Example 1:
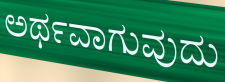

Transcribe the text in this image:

ಅರ್ಥವಾಗುವುದು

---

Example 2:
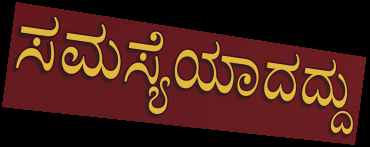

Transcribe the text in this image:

ಸಮಸ್ಯೆಯಾದದ್ದು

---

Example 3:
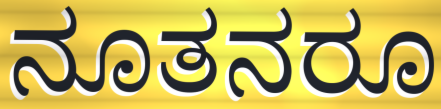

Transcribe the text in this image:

ನೂತನರೂ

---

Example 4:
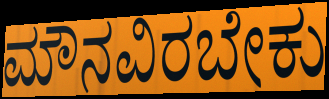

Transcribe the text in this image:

ಮೌನವಿರಬೇಕು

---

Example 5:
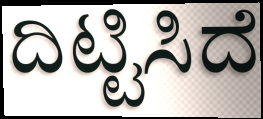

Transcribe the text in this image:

ದಿಟ್ಟಿಸಿದೆ